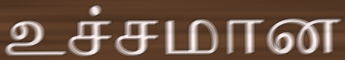
உச்சமான